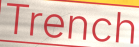
Trench